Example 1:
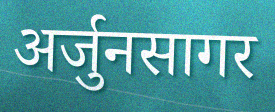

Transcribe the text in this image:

अर्जुनसागर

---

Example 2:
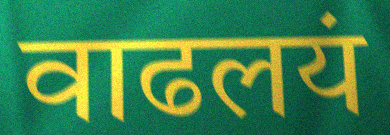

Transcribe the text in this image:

वाढलयं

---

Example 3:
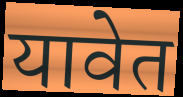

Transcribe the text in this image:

यावेत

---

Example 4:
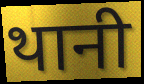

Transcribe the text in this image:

थानी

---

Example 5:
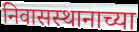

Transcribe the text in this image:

निवासस्थानाच्या